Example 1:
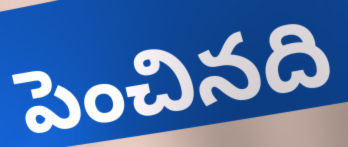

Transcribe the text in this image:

పెంచినది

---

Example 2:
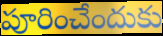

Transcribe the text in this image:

పూరించేందుకు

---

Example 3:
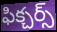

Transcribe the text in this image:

ఫిక్చర్స్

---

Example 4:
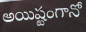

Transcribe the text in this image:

అయిష్టంగానో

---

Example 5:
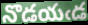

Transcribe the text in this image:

నొడయఁడ